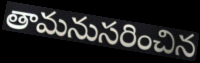
తామనుసరించిన